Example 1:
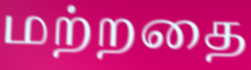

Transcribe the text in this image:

மற்றதை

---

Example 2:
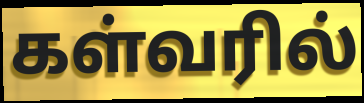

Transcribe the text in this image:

கள்வரில்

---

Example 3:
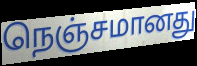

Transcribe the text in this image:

நெஞ்சமானது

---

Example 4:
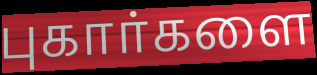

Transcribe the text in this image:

புகார்களை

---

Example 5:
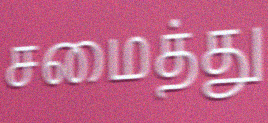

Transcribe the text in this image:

சமைத்து